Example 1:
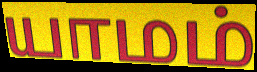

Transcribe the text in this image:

யாமம்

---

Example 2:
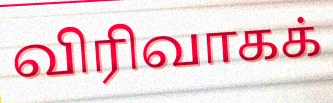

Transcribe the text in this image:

விரிவாகக்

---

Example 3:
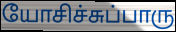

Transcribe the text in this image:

யோசிச்சுப்பாரு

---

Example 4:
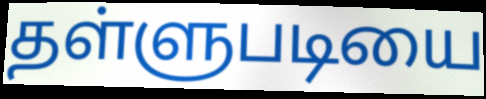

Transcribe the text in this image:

தள்ளுபடியை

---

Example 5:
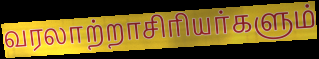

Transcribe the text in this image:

வரலாற்றாசிரியர்களும்